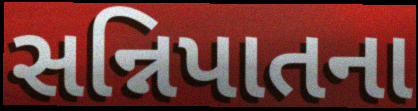
સન્નિપાતના